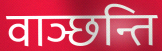
वाञ्छन्ति